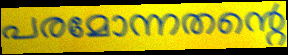
പരമോന്നതന്റെ